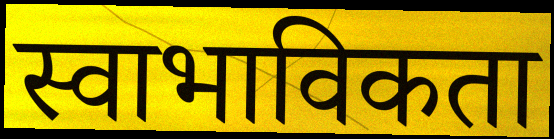
स्वाभाविकता